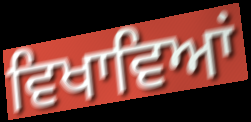
ਵਿਖਾਵਿਆਂ